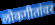
लोकगीतांवर